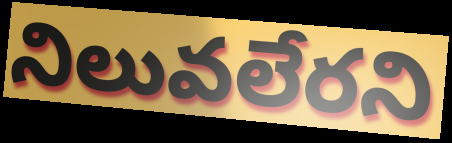
నిలువలేరని